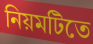
নিয়মটিতে